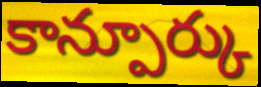
కాన్పూర్కు